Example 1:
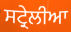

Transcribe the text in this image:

ਸਟ੍ਰੇਲੀਆ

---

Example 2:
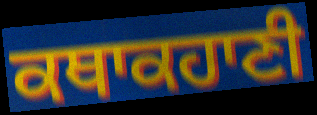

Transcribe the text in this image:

ਕਥਾਕਹਾਣੀ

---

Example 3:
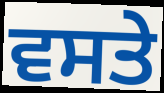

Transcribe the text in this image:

ਵਸਤੇ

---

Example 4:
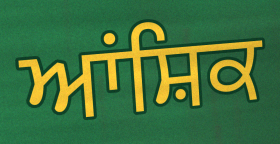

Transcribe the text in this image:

ਆਂਸ਼ਿਕ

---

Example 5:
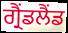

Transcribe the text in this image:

ਗ੍ਰੈਂਡਲੈਂਡ